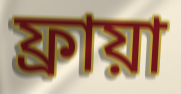
ফ্রায়া